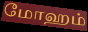
மோஹம்